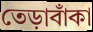
তেড়াবাঁকা